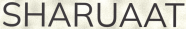
SHARUAAT